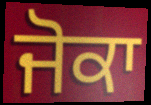
ਜੋਕਾ